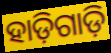
ହାଡ଼ିଗାଡ଼ି